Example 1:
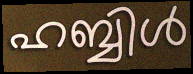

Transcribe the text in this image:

ഹബ്ബിൾ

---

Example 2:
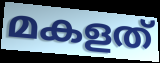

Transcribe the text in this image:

മകളത്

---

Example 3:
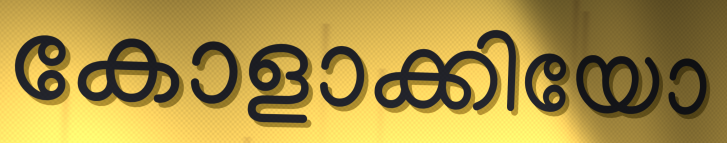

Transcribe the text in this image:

കോളാക്കിയോ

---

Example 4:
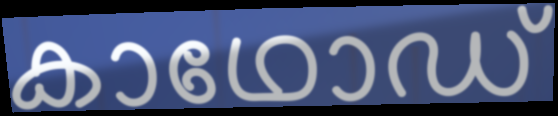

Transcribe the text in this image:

കാഥോഡ്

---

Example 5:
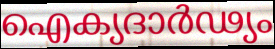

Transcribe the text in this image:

ഐക്യദാർഢ്യം